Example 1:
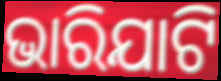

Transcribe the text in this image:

ଭାରିଯାଟି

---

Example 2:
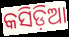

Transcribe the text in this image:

କସିଡ଼ିଆ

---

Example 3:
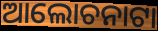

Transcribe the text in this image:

ଆଲୋଚନାଟା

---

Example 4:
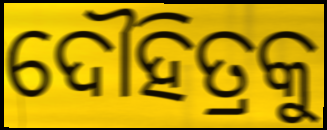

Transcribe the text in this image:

ଦୌହିତ୍ରକୁ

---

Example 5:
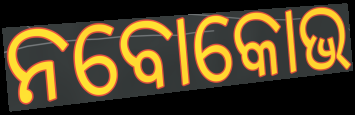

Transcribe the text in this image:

ନବୋକୋଭ